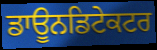
ਡਾਊਨਡਿਟੇਕਟਰ